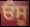
ਓਸੂ